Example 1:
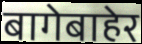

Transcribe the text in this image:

बागेबाहेर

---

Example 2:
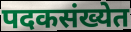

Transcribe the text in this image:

पदकसंख्येत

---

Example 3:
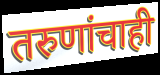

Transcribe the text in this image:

तरुणांचाही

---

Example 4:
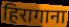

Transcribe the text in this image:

हिरागाना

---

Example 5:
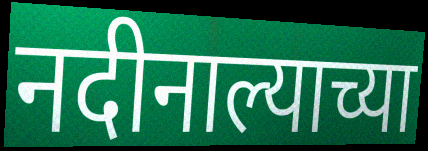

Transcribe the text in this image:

नदीनाल्याच्या